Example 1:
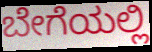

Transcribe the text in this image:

ಬೇಗೆಯಲ್ಲಿ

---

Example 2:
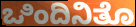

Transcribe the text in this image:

ಒಿಂದಿನಿತೊ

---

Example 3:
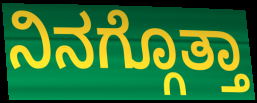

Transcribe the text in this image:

ನಿನಗ್ಗೊತ್ತಾ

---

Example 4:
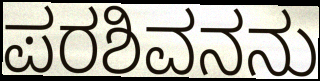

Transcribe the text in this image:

ಪರಶಿವನನು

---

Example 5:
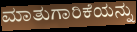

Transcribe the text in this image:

ಮಾತುಗಾರಿಕೆಯನ್ನು